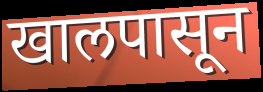
खालपासून